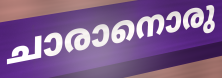
ചാരാനൊരു